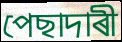
পেছাদাৰী